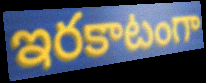
ఇరకాటంగా